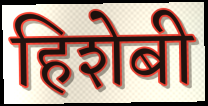
हिशेबी